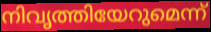
നിവൃത്തിയേറുമെന്ന്